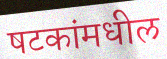
षटकांमधील